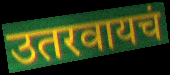
उतरवायचं